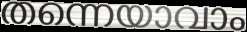
തന്നെയാവാം